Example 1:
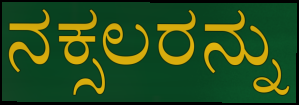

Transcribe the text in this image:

ನಕ್ಸಲರನ್ನು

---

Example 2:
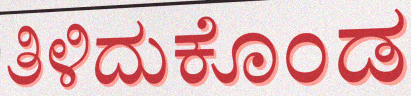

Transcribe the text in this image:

ತಿಳಿದುಕೊಂಡ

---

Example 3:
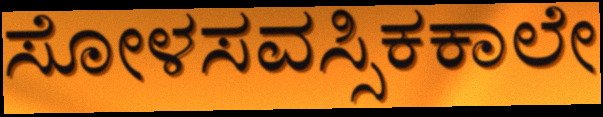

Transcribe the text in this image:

ಸೋಳಸವಸ್ಸಿಕಕಾಲೇ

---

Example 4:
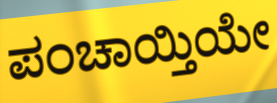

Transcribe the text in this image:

ಪಂಚಾಯ್ತಿಯೇ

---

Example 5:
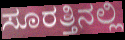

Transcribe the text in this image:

ಸೂರತ್ತಿನಲ್ಲಿ